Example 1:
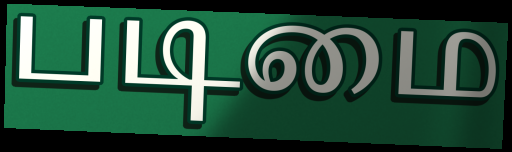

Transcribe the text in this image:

படிமை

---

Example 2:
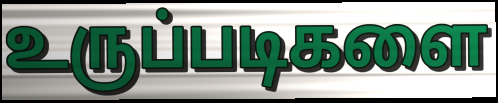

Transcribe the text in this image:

உருப்படிகளை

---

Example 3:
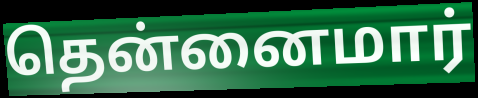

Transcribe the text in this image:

தென்னைமார்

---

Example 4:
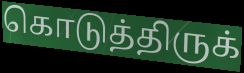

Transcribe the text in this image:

கொடுத்திருக்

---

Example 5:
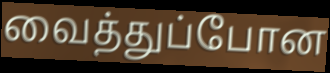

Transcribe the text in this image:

வைத்துப்போன